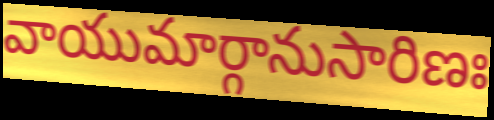
వాయుమార్గానుసారిణః